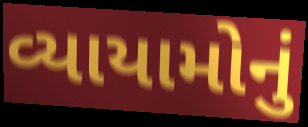
વ્યાયામોનું